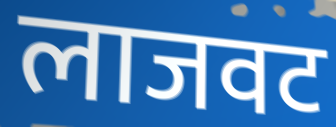
लाजवट